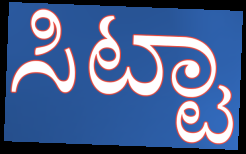
ಸಿಟ್ಟಾ